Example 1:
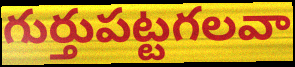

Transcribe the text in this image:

గుర్తుపట్టగలవా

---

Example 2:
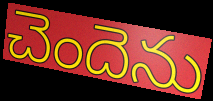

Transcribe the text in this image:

చెందెను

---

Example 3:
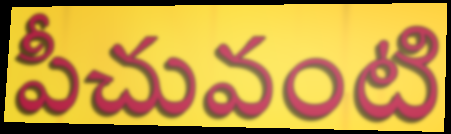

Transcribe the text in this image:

పీచువంటి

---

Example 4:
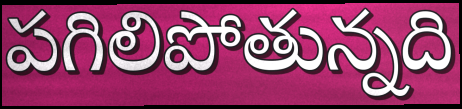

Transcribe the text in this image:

పగిలిపోతున్నది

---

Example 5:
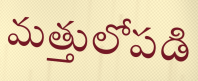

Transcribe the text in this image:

మత్తులోపడి